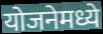
योजनेमध्ये